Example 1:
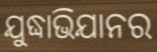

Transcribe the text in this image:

ଯୁଦ୍ଧାଭିଯାନର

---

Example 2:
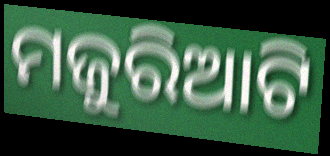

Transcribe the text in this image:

ମଜୁରିଆଟି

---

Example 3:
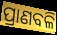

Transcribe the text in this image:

ପ୍ରାଣବଳି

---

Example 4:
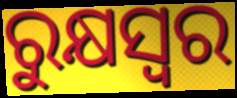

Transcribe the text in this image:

ରୁକ୍ଷସ୍ୱର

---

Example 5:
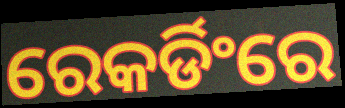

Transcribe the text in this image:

ରେକର୍ଡିଂରେ